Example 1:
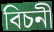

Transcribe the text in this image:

বিচনী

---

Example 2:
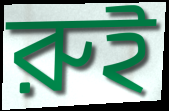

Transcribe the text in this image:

ৰুই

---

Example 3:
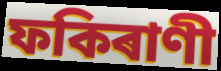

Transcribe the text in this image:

ফকিৰাণী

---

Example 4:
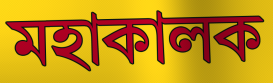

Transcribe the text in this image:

মহাকালক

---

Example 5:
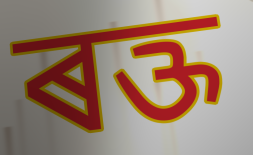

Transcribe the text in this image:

ৰক্ত